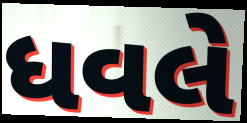
ધવલે